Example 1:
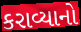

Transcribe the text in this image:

કરાવ્યાનો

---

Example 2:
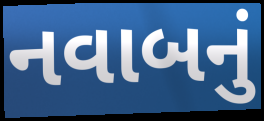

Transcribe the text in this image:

નવાબનું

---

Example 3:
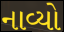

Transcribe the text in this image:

નાવ્યો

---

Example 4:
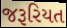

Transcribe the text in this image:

જરૂરિયત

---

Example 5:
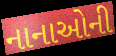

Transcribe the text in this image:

નાનાઓની